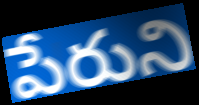
పేరుని